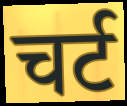
चर्ट